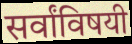
सर्वांविषयी